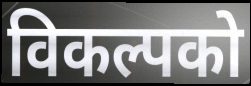
विकल्पको